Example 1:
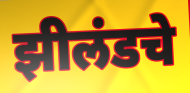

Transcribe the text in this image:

झीलंडचे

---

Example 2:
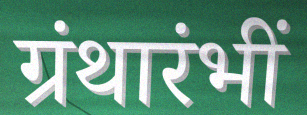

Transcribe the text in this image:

ग्रंथारंभीं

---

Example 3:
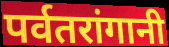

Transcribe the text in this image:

पर्वतरांगानी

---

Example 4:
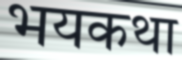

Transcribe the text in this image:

भयकथा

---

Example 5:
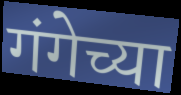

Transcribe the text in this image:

गंगेच्या